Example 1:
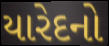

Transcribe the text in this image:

યારેદનો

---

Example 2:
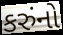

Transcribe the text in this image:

કરુંનો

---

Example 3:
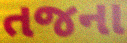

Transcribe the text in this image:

તજના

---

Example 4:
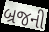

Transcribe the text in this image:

બ્રજની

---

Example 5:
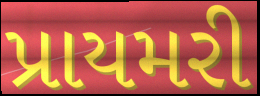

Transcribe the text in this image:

પ્રાયમરી